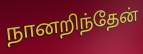
நானறிந்தேன்